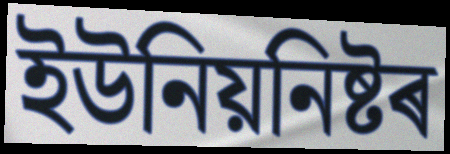
ইউনিয়নিষ্টৰ